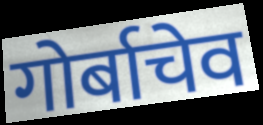
गोर्बाचेव